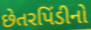
છેતરપિંડીનો